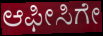
ಆಫೀಸಿಗೇ